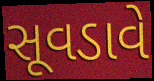
સૂવડાવે